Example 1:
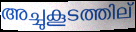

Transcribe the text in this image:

അച്ചുകൂടത്തില്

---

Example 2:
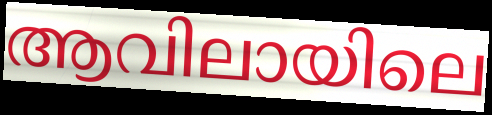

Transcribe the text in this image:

ആവിലായിലെ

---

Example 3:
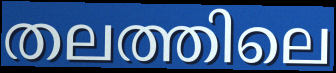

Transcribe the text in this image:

തലത്തിലെ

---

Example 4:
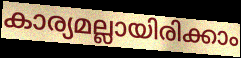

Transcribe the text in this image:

കാര്യമല്ലായിരിക്കാം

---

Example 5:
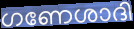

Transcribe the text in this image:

ഗണേശാദി